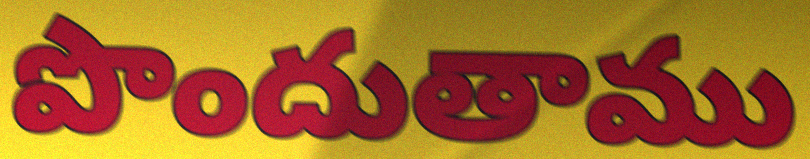
పొందుతాము